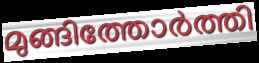
മുങ്ങിത്തോർത്തി